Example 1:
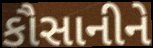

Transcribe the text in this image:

કૌસાનીને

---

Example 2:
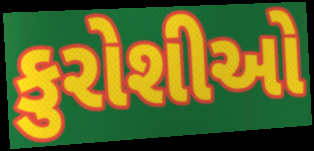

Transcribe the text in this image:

કુરોશીઓ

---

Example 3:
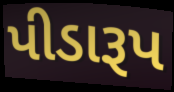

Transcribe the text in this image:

પીડારૂપ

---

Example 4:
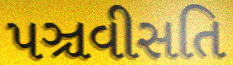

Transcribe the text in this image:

પઞ્ચવીસતિ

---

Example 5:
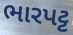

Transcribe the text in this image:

ભારપટ્ટ